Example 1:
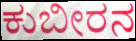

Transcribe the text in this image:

ಕುಬೀರನ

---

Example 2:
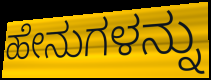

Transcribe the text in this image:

ಹೇನುಗಳನ್ನು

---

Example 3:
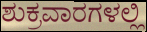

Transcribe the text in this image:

ಶುಕ್ರವಾರಗಳಲ್ಲಿ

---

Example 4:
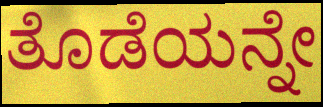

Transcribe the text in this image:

ತೊಡೆಯನ್ನೇ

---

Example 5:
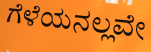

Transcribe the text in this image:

ಗೆಳೆಯನಲ್ಲವೇ